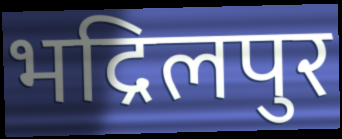
भद्रिलपुर